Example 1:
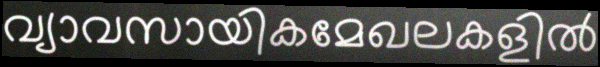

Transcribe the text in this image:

വ്യാവസായികമേഖലകളിൽ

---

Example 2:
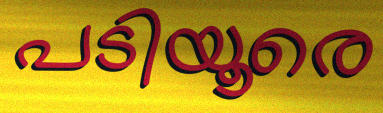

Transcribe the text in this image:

പടിയൂരെ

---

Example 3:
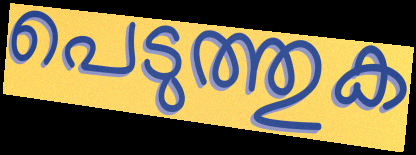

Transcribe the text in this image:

പെടുത്തുക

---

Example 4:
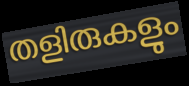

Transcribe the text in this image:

തളിരുകളും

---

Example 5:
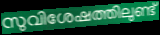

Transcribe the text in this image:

സുവിശേഷത്തിലുണ്ട്